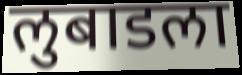
लुबाडला